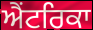
ਐਂਟਰਿਕਾ